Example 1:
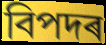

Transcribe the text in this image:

বিপদৰ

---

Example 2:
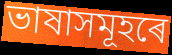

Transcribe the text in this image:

ভাষাসমূহৰে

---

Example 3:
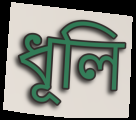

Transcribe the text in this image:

ধূলি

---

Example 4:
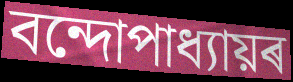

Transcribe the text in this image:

বন্দোপাধ্যায়ৰ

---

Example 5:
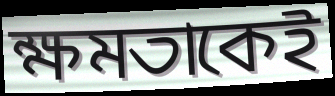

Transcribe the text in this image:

ক্ষমতাকেই